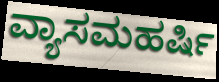
ವ್ಯಾಸಮಹರ್ಷಿ